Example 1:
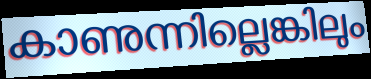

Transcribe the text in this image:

കാണുന്നില്ലെങ്കിലും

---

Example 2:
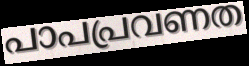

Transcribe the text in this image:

പാപപ്രവണത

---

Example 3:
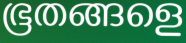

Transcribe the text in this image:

ഭൂതങ്ങളെ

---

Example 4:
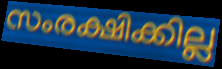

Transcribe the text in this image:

സംരക്ഷിക്കില്ല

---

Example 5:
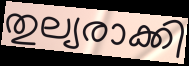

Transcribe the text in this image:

തുല്യരാക്കി